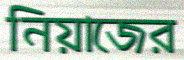
নিয়াজের